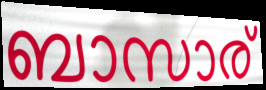
ബാസാര്